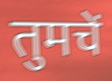
तुमचें